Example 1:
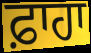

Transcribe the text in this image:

ਫ਼ਾਹਾ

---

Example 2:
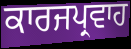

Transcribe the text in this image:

ਕਾਰਜਪ੍ਰਵਾਹ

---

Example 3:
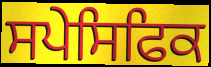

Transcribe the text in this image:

ਸਪੇਸਿਫਿਕ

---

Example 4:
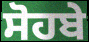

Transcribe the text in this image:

ਸੋਹਬੇ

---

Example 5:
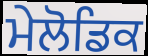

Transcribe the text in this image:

ਮੇਲੋਡਿਕ